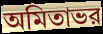
অমিতাভর